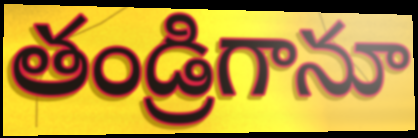
తండ్రిగానూ